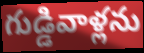
గుడ్డివాళ్లను